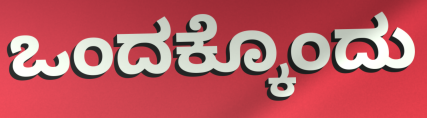
ಒಂದಕ್ಕೊಂದು